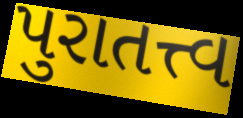
પુરાતત્ત્વ